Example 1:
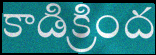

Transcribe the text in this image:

కాడిక్రింద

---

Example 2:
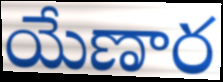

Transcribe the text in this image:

యేణార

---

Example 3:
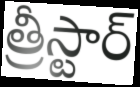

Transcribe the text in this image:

త్రీస్టార్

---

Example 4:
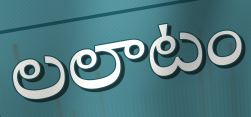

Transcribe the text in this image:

లలాటం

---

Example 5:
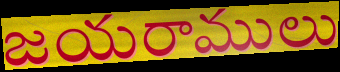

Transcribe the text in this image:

జయరాములు